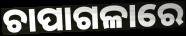
ଚାପାଗଳାରେ